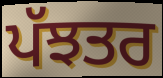
ਪੱਝਤਰ